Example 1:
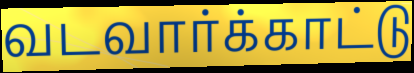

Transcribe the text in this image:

வடவார்க்காட்டு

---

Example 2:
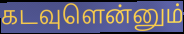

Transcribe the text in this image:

கடவுளென்னும்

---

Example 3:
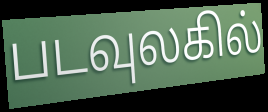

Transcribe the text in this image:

படவுலகில்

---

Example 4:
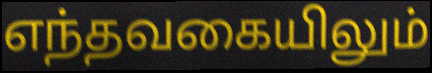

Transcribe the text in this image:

எந்தவகையிலும்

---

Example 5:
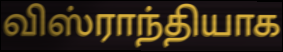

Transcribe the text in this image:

விஸ்ராந்தியாக